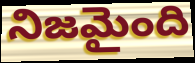
నిజమైంది